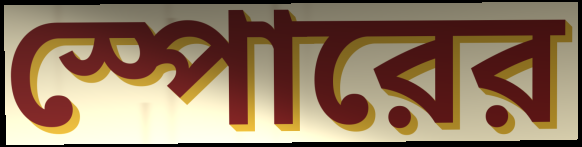
স্পোরের